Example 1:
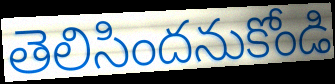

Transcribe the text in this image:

తెలిసిందనుకోండి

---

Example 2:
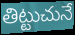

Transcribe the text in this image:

తిట్టుచునే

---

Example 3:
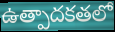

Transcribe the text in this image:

ఉత్పాదకతలో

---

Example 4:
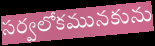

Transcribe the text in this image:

సర్వలోకమునకును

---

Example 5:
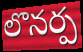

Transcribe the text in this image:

లొనర్ప